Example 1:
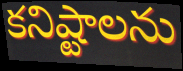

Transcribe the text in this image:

కనిష్టాలను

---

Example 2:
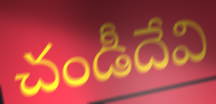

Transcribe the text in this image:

చండీదేవి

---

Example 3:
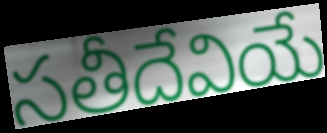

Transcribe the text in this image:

సతీదేవియే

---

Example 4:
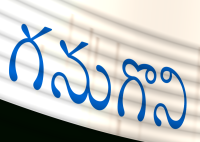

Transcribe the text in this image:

గనుగొని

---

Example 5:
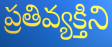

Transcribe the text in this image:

ప్రతివ్యక్తిని